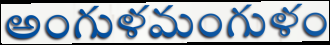
అంగుళమంగుళం